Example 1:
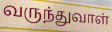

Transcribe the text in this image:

வருந்துவாள்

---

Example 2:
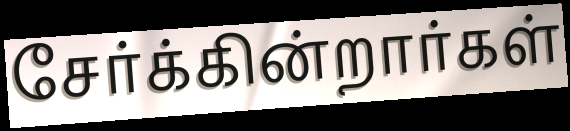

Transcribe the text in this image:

சேர்க்கின்றார்கள்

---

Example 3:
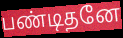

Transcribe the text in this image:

பண்டிதனே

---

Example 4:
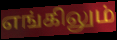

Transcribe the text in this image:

எங்கிலும்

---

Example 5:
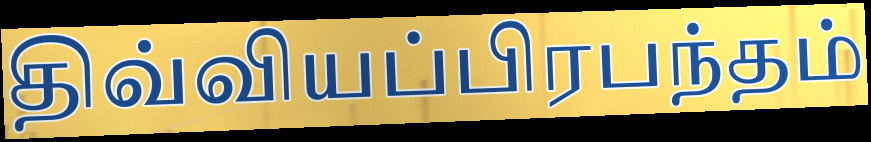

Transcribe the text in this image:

திவ்வியப்பிரபந்தம்